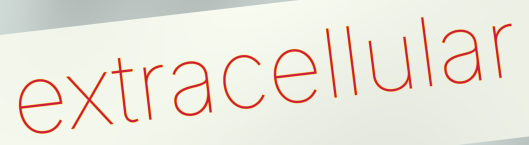
extracellular